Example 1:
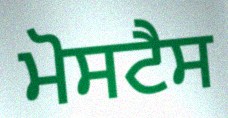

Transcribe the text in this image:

ਮੋਸਟੈਸ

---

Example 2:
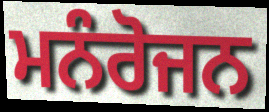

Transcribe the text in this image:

ਮਨੰਰੋਜਨ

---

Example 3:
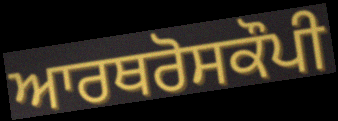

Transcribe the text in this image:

ਆਰਥਰੋਸਕੌਪੀ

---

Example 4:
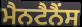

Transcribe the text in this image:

ਮੈਨਟੈਨੈਂਸ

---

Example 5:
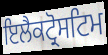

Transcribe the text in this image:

ਇਲੈਕਟ੍ਰੋਸਟਿਮ